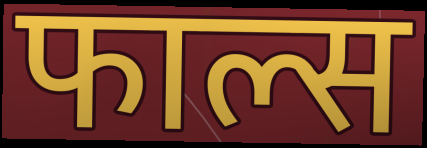
फाल्स